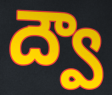
ద్వౌ